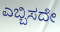
ಎಬ್ಬಿಸದೇ